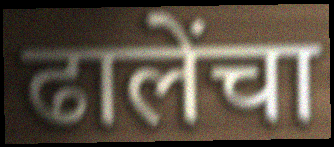
ढालेंचा